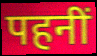
पहनीं